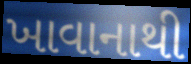
ખાવાનાથી